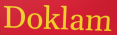
Doklam